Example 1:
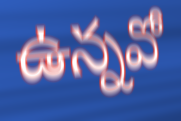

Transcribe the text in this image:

ఉన్నవో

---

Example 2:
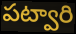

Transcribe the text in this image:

పట్వారి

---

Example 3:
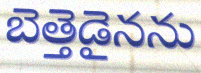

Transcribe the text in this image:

బెత్తెడైనను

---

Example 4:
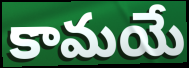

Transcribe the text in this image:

కామయే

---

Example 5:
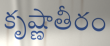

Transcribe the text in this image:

కృష్ణాతీరం